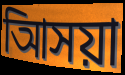
আিসয়া